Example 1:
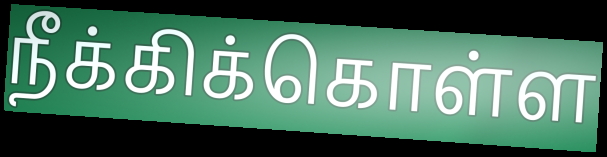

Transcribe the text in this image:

நீக்கிக்கொள்ள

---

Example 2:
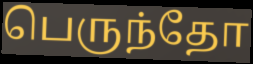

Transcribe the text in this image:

பெருந்தோ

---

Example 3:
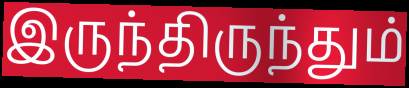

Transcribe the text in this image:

இருந்திருந்தும்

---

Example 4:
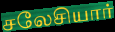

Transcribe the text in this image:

சலேசியார்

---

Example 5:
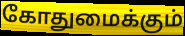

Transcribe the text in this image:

கோதுமைக்கும்